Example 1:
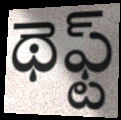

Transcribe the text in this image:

థెఫ్ట్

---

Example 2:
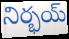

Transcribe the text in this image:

నిర్భయ్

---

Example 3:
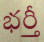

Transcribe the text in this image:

భర్తీ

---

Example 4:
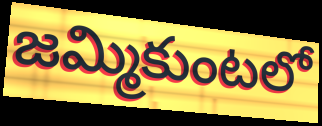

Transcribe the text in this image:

జమ్మికుంటలో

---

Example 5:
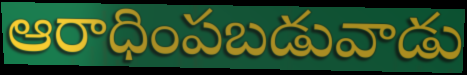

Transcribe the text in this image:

ఆరాధింపబడువాడు